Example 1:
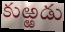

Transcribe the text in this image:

కుఱ్ఱడు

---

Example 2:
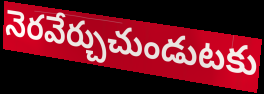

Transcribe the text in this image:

నెరవేర్చుచుండుటకు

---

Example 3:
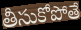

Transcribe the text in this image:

తీసుకోపోతే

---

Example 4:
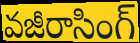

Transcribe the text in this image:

వజీరాసింగ్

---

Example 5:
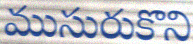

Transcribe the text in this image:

ముసురుకొని